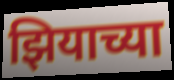
झियाच्या